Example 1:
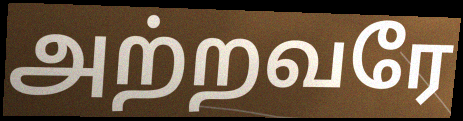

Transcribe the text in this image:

அற்றவரே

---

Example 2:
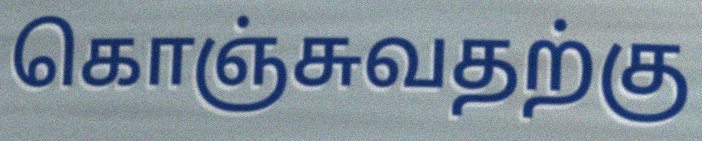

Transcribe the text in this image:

கொஞ்சுவதற்கு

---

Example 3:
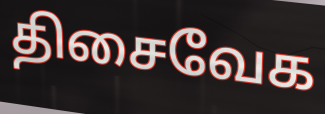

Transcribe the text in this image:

திசைவேக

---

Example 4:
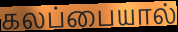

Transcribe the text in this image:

கலப்பையால்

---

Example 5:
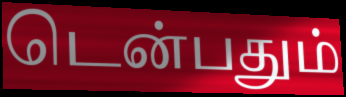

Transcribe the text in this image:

டென்பதும்